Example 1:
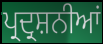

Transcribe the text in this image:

ਪ੍ਰਦ੍ਰਸ਼ਨੀਆਂ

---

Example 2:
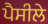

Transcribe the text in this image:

ਪੈਸੀਲੇ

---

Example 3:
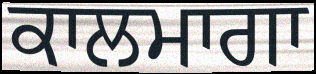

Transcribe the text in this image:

ਕਾਲਮਾਗਾ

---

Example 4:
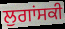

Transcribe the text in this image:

ਲੁਗਾਂਸਕੀ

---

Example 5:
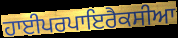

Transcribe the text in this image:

ਹਾਈਪਰਪਾਇਰੈਕਸੀਆ